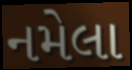
નમેલા